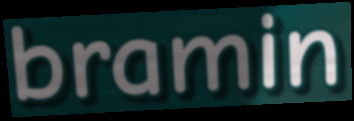
bramin